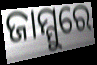
ଜାମ୍ମୁରେ